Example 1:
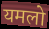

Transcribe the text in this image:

यमलो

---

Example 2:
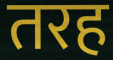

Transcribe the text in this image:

तरह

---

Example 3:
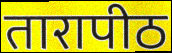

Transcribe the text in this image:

तारापीठ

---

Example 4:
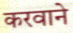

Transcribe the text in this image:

करवाने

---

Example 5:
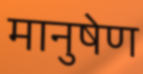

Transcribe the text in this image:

मानुषेण